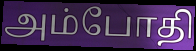
அம்போதி